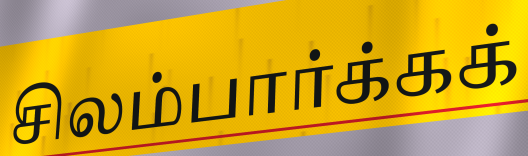
சிலம்பார்க்கக்